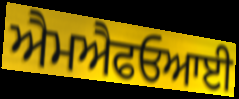
ਐਮਐਫਓਆਈ